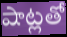
షాట్లతో